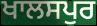
ਖਾਲਸਪੁਰ